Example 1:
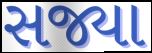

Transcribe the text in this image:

સજ્યા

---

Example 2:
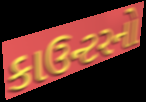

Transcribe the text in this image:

કાઉન્ટરનો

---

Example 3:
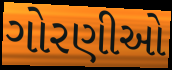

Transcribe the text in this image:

ગોરણીઓ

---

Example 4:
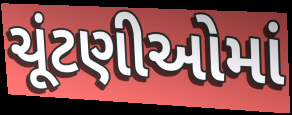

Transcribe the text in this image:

ચૂંટણીઓમાં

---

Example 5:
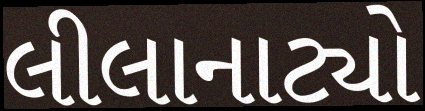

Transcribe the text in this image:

લીલાનાટ્યો